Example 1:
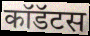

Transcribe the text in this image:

कॉडॅटस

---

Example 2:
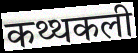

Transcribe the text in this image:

कथ्थकली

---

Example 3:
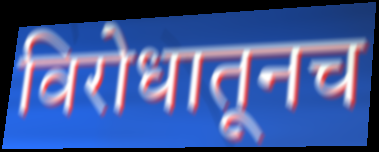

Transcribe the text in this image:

विरोधातूनच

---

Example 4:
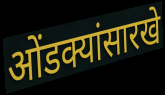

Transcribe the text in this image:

ओंडक्यांसारखे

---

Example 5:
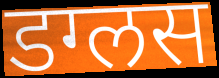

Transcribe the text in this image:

डग्लस